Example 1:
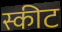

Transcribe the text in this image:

स्‍कीट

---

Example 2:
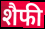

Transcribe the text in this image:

शैफी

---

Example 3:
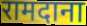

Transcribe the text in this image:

रामदाना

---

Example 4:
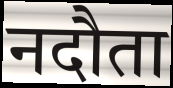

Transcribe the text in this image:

नदौता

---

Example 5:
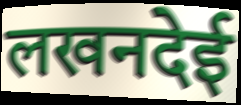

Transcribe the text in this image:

लखनदेई